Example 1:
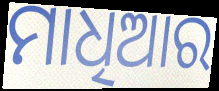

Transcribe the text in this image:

ମାଧିଆର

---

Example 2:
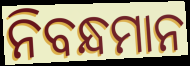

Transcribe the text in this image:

ନିବନ୍ଧମାନ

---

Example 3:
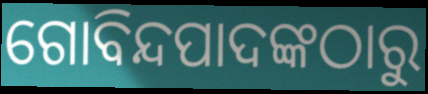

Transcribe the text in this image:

ଗୋବିନ୍ଦପାଦଙ୍କଠାରୁ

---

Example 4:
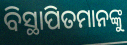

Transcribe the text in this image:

ବିସ୍ଥାପିତମାନଙ୍କୁ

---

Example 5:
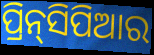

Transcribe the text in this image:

ପ୍ରିନ୍‌ସିପିଆର